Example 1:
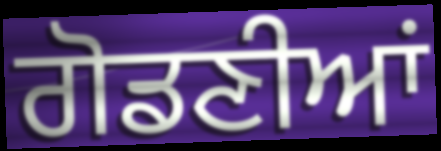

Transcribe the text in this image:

ਗੋਡਣੀਆਂ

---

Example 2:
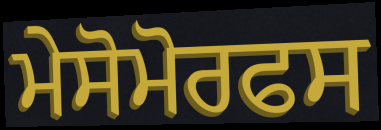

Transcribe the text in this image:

ਮੇਸੋਮੋਰਫਸ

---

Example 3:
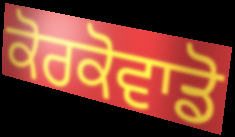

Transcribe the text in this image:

ਕੋਰਕੋਵਾਡੋ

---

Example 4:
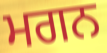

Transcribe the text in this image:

ਮਗਨ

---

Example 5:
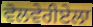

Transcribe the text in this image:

ਵੋਲਵੇਰੀਏਲਾ